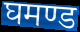
घमण्ड